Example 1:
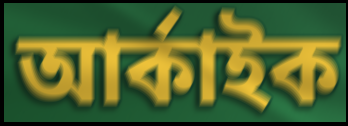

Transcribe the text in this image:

আর্কাইক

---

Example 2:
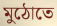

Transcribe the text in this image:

মুঠোতে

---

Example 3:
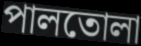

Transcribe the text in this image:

পালতোলা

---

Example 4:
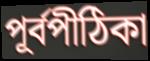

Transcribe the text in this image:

পূর্বপীঠিকা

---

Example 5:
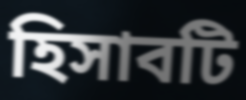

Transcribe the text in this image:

হিসাবটি